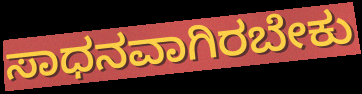
ಸಾಧನವಾಗಿರಬೇಕು